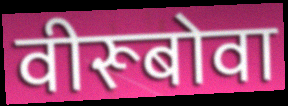
वीरूबोवा